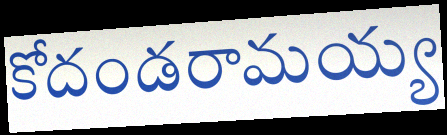
కోదండరామయ్య